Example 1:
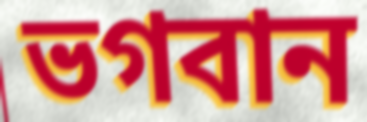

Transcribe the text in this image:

ভগবান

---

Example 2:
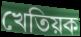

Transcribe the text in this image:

খেতিয়ক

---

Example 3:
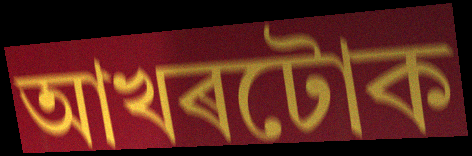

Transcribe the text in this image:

আখৰটোক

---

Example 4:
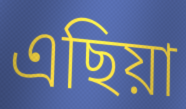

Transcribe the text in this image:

এছিয়া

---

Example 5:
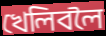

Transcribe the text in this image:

খেলিবলৈ